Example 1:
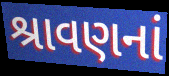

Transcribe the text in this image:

શ્રાવણનાં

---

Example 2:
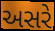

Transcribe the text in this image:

અસરે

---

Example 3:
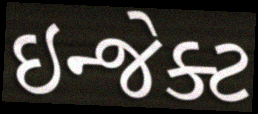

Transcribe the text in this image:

ઇન્જેક્ટ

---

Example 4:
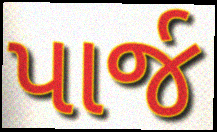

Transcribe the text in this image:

પાર્જ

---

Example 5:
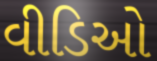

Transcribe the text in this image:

વીડિઓ